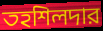
তহশিলদার